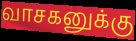
வாசகனுக்கு